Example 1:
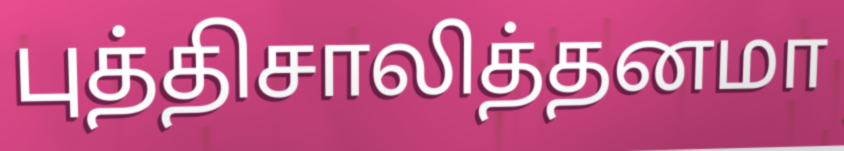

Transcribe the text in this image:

புத்திசாலித்தனமா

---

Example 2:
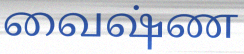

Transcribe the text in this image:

வைஷ்ண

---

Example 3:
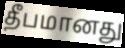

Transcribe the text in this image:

தீபமானது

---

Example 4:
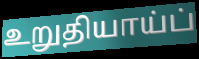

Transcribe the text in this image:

உறுதியாய்ப்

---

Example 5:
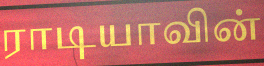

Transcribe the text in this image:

ராடியாவின்